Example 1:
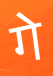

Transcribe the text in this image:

गे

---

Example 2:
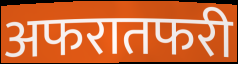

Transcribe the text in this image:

अफरातफरी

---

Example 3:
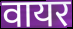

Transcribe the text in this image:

वायर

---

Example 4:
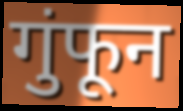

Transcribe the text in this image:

गुंफून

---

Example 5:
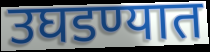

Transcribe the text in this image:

उघडण्यात